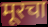
मूरचा